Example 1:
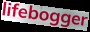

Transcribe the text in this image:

lifebogger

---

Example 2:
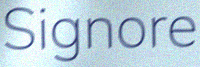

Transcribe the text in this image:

Signore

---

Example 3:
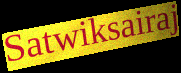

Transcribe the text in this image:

Satwiksairaj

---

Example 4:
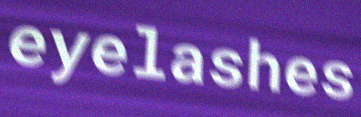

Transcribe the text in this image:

eyelashes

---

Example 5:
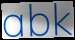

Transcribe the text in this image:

abk